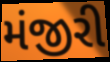
મંજીરી